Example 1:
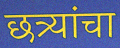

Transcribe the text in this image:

छत्र्यांचा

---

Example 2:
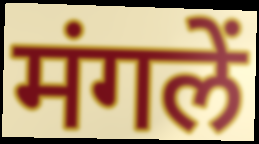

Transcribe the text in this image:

मंगलें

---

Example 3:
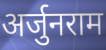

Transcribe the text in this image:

अर्जुनराम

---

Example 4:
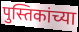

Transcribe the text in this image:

पुस्तिकांच्या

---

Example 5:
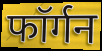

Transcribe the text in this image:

फॉर्गन